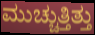
ಮುಚ್ಚುತ್ತಿತ್ತು